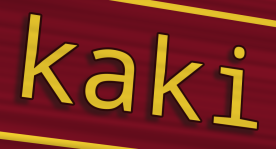
kaki